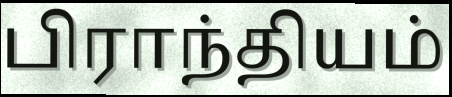
பிராந்தியம்